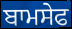
ਬਾਮਸੇਫ